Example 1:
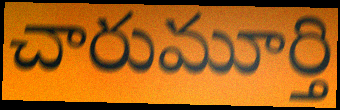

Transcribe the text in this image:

చారుమూర్తి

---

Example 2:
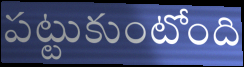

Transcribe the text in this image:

పట్టుకుంటోంది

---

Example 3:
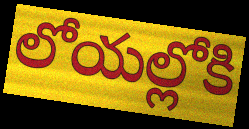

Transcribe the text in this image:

లోయల్లోకి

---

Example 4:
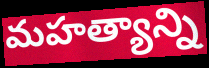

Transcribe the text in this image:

మహత్యాన్ని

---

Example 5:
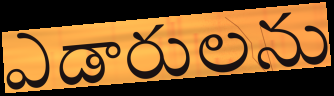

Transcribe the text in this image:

ఎడారులను